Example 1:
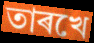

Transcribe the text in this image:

তাৰখে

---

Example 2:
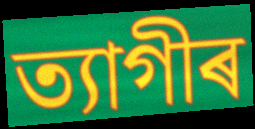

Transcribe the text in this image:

ত্যাগীৰ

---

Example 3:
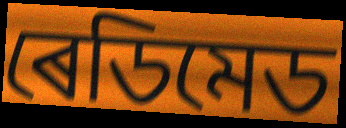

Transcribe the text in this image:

ৰেডিমেড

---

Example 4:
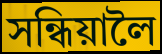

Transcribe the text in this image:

সন্ধিয়ালৈ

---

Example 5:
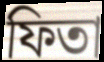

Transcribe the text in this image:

ফিতা